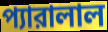
প্যারালাল